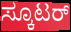
ಸ್ಕೂಟರ್